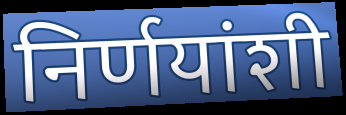
निर्णयांशी